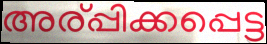
അര്പ്പിക്കപ്പെട്ട